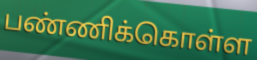
பண்ணிக்கொள்ள